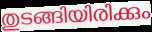
തുടങ്ങിയിരിക്കും